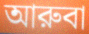
আরুবা